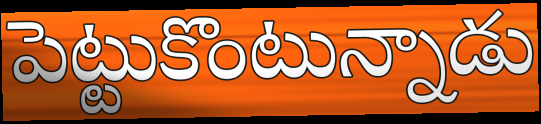
పెట్టుకొంటున్నాడు